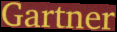
Gartner